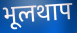
भूलथाप